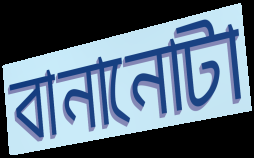
বানানোটা